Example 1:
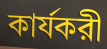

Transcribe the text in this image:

কার্যকরী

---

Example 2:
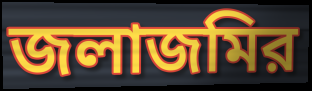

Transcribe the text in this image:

জলাজমির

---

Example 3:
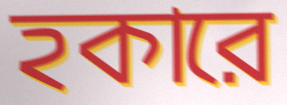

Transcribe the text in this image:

হকারে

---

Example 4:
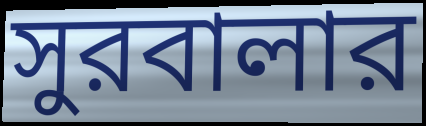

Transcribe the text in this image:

সুরবালার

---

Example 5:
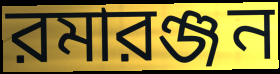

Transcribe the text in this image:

রমারঞ্জন